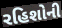
રહિશોની